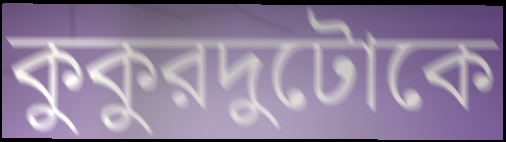
কুকুরদুটোকে